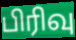
பிரிவு